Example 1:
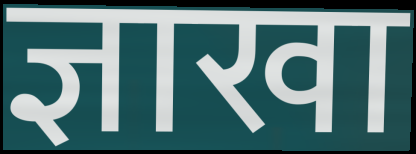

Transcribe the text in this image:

ज्ञाखा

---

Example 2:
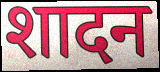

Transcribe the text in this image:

शादन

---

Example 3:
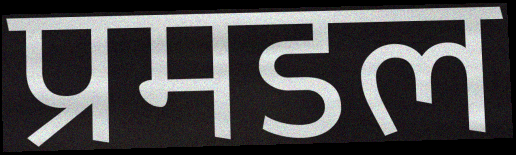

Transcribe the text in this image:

प्रमडल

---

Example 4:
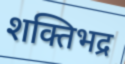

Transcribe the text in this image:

शक्तिभद्र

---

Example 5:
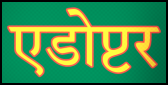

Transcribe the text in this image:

एडोप्टर